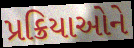
પ્રક્રિયાઓને